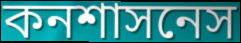
কনশাসনেস